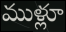
ముళ్లూ